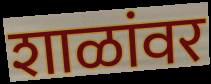
शाळांवर